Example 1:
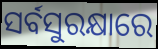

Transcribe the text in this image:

ସର୍ବସୁରକ୍ଷାରେ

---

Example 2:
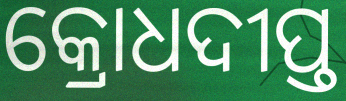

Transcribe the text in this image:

କ୍ରୋଧଦୀପ୍ତ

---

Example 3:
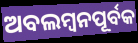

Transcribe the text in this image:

ଅବଲମ୍ୱନପୂର୍ବକ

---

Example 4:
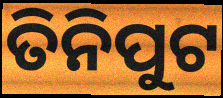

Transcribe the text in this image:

ତିନିପୁଟ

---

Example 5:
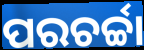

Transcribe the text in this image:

ପରଚର୍ଚ୍ଚା